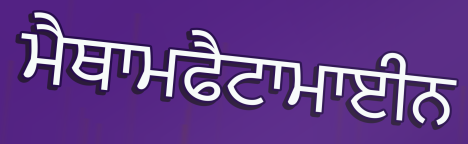
ਮੈਥਾਮਫੈਟਾਮਾਈਨ